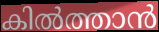
കിൽത്താൻ